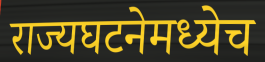
राज्यघटनेमध्येच